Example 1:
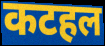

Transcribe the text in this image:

कटहल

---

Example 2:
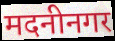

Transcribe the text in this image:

मदनीनगर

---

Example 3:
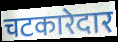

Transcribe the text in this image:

चटकारेदार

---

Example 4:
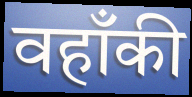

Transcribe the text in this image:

वहाँकी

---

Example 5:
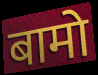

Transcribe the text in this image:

बामो